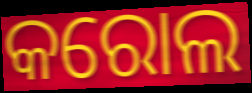
କରୋଲ